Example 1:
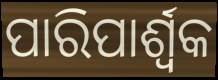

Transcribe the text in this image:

ପାରିପାର୍ଶ୍ବକ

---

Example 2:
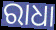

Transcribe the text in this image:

ରାଧା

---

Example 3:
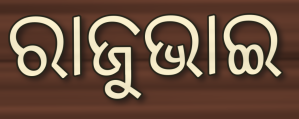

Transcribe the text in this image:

ରାଜୁଭାଇ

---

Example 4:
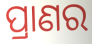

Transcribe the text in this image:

ପ୍ରାଣର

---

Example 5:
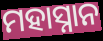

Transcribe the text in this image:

ମହାସ୍ନାନ